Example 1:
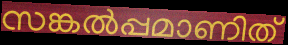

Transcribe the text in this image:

സങ്കൽപ്പമാണിത്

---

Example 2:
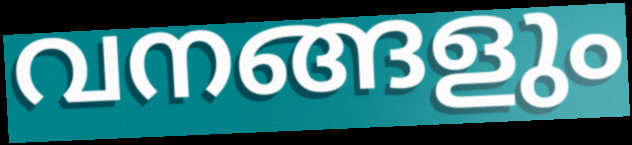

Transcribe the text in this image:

വനങ്ങളും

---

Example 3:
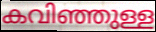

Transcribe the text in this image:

കവിഞ്ഞുള്ള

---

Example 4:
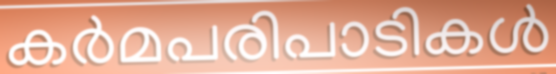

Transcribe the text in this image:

കർമപരിപാടികൾ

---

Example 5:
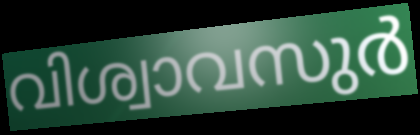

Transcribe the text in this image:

വിശ്വാവസുർ